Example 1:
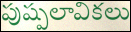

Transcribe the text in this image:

పుష్పలావికలు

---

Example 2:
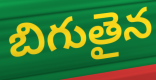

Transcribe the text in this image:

బిగుతైన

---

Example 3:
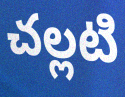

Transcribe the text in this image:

చల్లటి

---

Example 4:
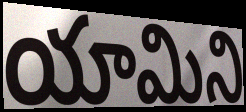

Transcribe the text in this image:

యామిని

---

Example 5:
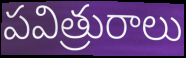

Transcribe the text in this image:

పవిత్రురాలు